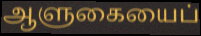
ஆளுகையைப்